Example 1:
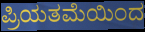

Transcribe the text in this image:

ಪ್ರಿಯತಮೆಯಿಂದ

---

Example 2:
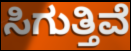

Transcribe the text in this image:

ಸಿಗುತ್ತಿವೆ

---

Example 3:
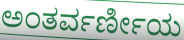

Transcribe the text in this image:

ಅಂತರ್ವರ್ಣೀಯ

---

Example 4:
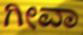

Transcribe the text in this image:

ಗೀವಾ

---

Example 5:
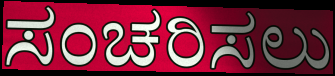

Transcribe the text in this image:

ಸಂಚರಿಸಲು